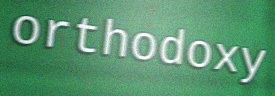
orthodoxy